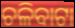
ଚଳିବାଟା